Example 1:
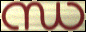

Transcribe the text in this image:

ന്ധ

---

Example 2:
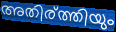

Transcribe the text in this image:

അതിര്ത്തിയും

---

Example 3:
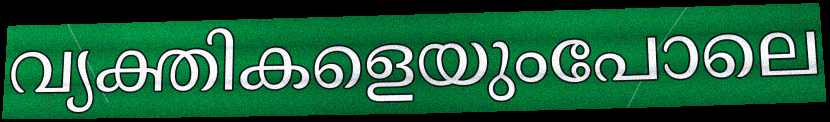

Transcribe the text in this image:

വ്യക്തികളെയുംപോലെ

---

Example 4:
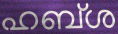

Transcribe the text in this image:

ഹബ്ശ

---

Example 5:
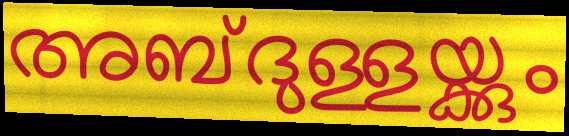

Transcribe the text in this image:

അബ്ദുള്ളയ്ക്കും